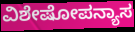
ವಿಶೇಷೋಪನ್ಯಾಸ